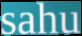
sahu